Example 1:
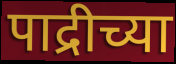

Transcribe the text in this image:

पाद्रीच्या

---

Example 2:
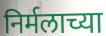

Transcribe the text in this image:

निर्मलाच्या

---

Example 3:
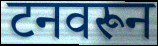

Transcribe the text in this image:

टनवरून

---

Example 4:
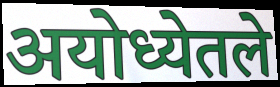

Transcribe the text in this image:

अयोध्येतले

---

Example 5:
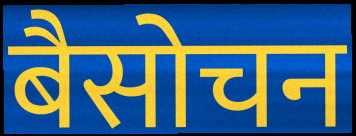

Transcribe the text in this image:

बैसोचन